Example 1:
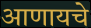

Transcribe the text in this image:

आणायचे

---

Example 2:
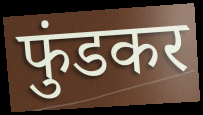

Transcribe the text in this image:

फुंडकर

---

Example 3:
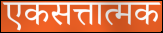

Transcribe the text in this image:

एकसत्तात्मक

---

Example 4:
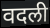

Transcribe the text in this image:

वदली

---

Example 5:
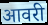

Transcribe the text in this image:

आवरी